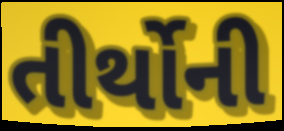
તીર્થોની